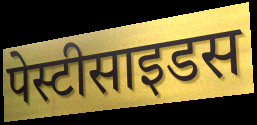
पेस्टीसाइडस